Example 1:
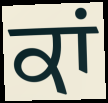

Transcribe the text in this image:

ਕਾਂ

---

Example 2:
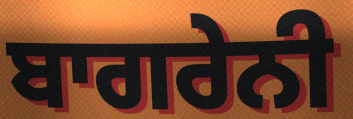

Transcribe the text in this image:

ਬਾਗਰੇਨੀ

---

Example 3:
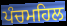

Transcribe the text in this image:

ਪੰਚਮਹਿਲ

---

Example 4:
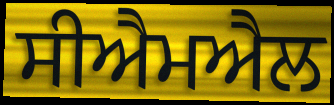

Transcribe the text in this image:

ਸੀਐਮਐਲ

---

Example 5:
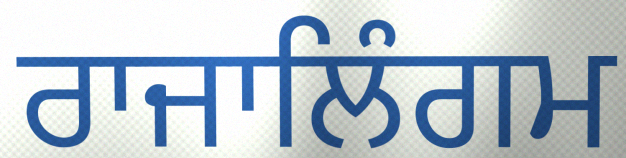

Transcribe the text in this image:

ਰਾਜਾਲਿੰਗਮ